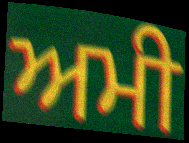
ਅਮੀ